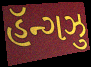
હૅન્ગઝુ